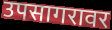
उपसागरावर